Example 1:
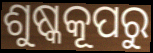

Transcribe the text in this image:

ଶୁଷ୍କକୂପରୁ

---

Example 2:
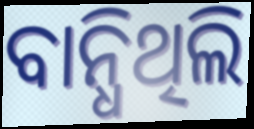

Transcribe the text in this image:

ବାନ୍ଧିଥିଲି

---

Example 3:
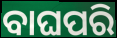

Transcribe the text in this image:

ବାଘପରି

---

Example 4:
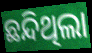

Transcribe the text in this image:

ଛନ୍ଦିଥିଲା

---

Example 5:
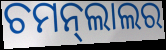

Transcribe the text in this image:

ଚମନ୍‍ଲାଲର